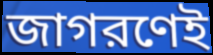
জাগরণেই